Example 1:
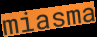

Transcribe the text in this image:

miasma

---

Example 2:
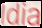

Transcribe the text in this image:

Idia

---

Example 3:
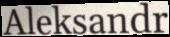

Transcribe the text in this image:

Aleksandr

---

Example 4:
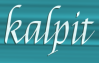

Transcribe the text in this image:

kalpit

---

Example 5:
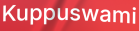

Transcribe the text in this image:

Kuppuswami